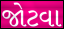
જોટવા